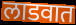
लाडवात